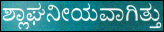
ಶ್ಲಾಘನೀಯವಾಗಿತ್ತು